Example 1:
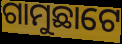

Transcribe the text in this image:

ଗାମୁଛାଟେ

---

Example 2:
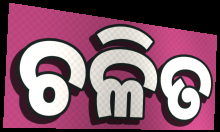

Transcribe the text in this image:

ଚଳିତ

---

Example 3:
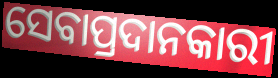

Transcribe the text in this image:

ସେବାପ୍ରଦାନକାରୀ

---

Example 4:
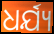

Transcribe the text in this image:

ଧର୍ଯ୍ୟ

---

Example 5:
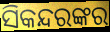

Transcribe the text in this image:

ସିକନ୍ଦରଙ୍କର